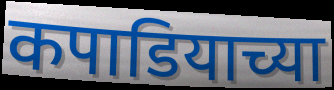
कपाडियाच्या